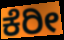
ಕೆರೀ